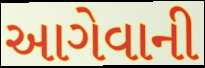
આગેવાની